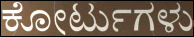
ಕೋರ್ಟುಗಳು